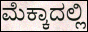
ಮೆಕ್ಕಾದಲ್ಲಿ